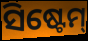
ସିଷ୍ଟେମ୍